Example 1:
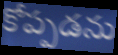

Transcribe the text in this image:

కోప్పడను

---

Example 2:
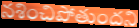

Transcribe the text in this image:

నశించిపోతుందని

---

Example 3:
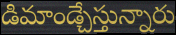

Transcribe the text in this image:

డిమాండ్చేస్తున్నారు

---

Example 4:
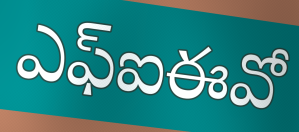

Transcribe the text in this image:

ఎఫ్ఐఈవో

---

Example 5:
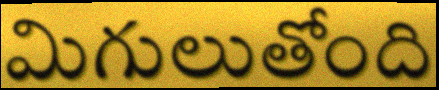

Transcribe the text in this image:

మిగులుతోంది